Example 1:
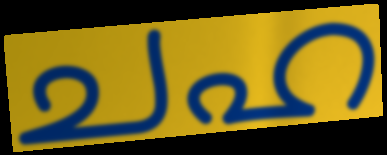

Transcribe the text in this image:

ചഹ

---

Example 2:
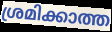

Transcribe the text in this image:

ശ്രമിക്കാത്ത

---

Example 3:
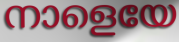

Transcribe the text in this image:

നാളെയേ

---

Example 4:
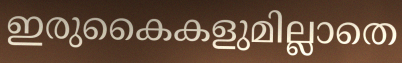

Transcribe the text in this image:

ഇരുകൈകളുമില്ലാതെ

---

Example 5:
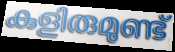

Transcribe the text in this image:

കുളിരുമുണ്ട്